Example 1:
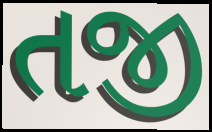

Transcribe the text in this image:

તજી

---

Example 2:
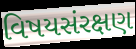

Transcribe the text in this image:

વિષયસંરક્ષણ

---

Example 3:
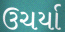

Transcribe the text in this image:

ઉચર્યા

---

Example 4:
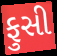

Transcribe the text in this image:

ફુસી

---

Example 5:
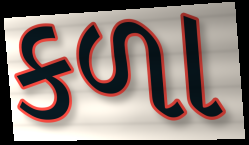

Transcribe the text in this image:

કળા